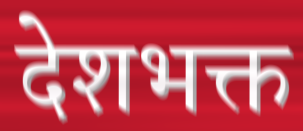
देशभक्त